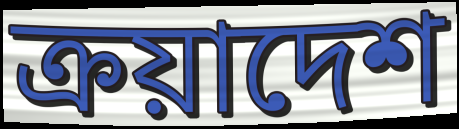
ক্রয়াদেশ